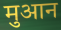
मुआन